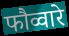
फौव्वारे